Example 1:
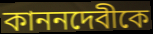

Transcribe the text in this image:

কাননদেবীকে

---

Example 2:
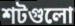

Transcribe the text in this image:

শটগুলো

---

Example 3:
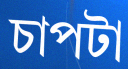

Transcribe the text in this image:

চাপটা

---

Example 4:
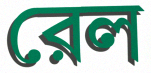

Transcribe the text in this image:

রেল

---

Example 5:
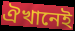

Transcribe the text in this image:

ঐখানেই